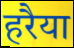
हरैया